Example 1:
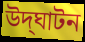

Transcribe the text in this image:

উদ্‌ঘাটন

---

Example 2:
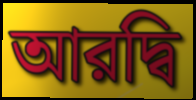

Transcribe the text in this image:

আরদ্বি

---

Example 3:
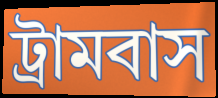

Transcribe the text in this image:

ট্রামবাস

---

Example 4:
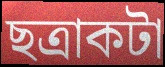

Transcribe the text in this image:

ছত্রাকটা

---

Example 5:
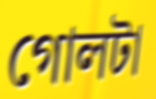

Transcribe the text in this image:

গোলটা